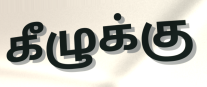
கீழுக்கு